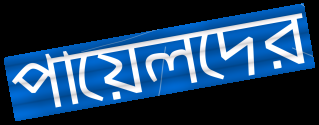
পায়েলদের